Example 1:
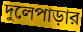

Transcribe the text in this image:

দুলেপাড়ার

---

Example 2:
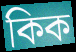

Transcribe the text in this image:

কিক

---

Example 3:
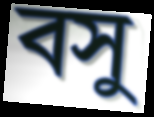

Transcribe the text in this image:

বসু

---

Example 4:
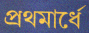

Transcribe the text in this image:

প্রথমার্ধে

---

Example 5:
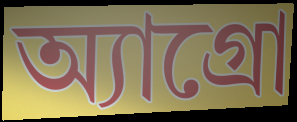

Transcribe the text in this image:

অ্যাগ্রো